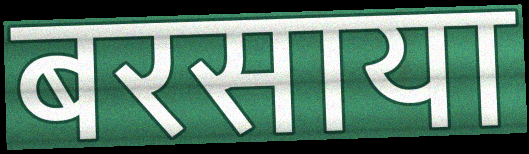
बरसाया